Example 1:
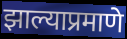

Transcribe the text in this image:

झाल्याप्रमाणे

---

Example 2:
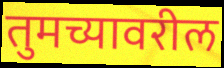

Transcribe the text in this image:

तुमच्यावरील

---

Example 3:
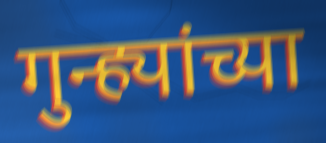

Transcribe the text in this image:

गुन्ह्यांच्या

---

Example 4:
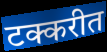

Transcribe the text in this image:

टक्करीत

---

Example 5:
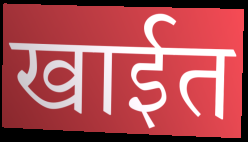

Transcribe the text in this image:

खाईत